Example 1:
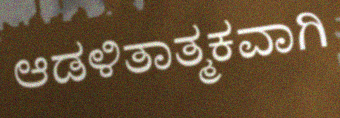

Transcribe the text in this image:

ಆಡಳಿತಾತ್ಮಕವಾಗಿ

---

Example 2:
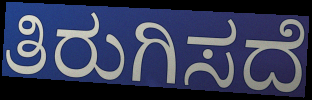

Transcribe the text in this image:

ತಿರುಗಿಸದೆ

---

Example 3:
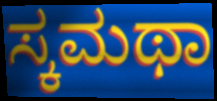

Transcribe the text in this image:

ಸ್ಕಮಥಾ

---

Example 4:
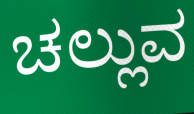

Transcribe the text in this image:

ಚಲ್ಲುವ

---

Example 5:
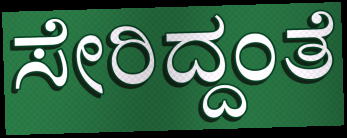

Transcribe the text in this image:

ಸೇರಿದ್ದಂತೆ